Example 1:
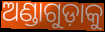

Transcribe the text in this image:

ଅଣ୍ଡାଗୁଡ଼ାକୁ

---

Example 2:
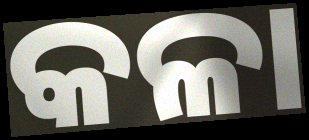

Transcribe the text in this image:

କଳା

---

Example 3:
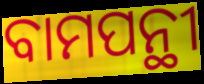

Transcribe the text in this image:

ବାମପନ୍ଥୀ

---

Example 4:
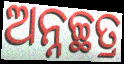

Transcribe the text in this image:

ଅନ୍ନଚ୍ଛତ୍ର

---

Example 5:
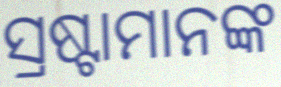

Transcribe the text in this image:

ସ୍ରଷ୍ଟାମାନଙ୍କ